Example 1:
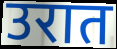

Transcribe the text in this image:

उरात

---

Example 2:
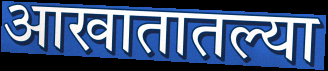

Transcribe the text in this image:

आखातातल्या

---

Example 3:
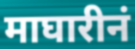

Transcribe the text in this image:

माघारीनं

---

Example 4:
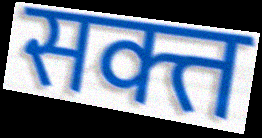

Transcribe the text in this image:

सक्त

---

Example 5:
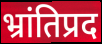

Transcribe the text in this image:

भ्रांतिप्रद